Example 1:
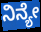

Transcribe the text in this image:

ನಿನ್ಯೇ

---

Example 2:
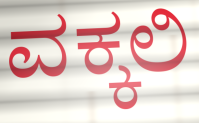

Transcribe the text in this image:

ವಕ್ಕಲಿ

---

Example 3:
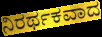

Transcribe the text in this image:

ನಿರರ್ಥಕವಾದ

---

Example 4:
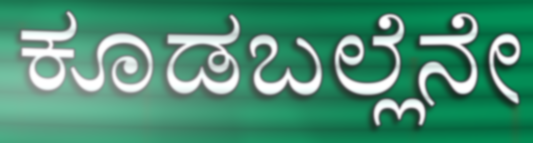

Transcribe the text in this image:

ಕೂಡಬಲ್ಲೆನೇ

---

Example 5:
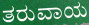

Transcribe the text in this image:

ತರುವಾಯ